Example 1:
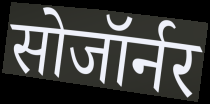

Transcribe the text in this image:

सोजॉर्नर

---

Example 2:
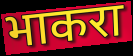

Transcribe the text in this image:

भाकरा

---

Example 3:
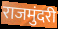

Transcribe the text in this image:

राजमुंदरी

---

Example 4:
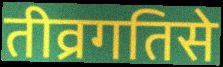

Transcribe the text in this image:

तीव्रगतिसे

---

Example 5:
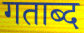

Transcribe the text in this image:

गताब्द